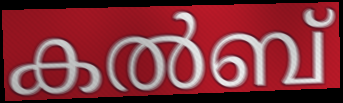
കൽബ്